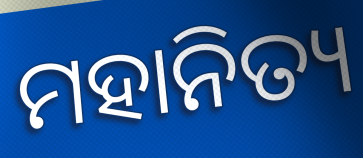
ମହାନିତ୍ୟ